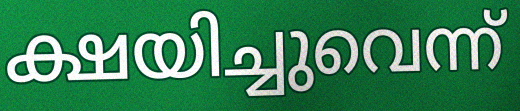
ക്ഷയിച്ചുവെന്ന്